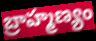
బ్రాహ్మణ్యం